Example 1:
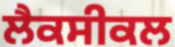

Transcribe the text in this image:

ਲੈਕਸੀਕਲ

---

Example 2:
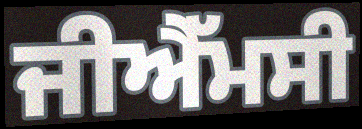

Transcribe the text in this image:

ਜੀਐੱਮਸੀ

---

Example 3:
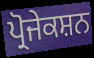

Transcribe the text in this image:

ਪ੍ਰੋਜੇਕਸ਼ਨ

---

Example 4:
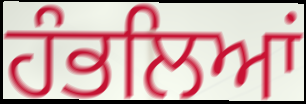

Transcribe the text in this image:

ਹੰਭਲਿਆਂ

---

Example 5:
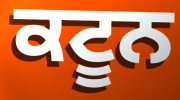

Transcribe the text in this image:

ਕਟੂਨ